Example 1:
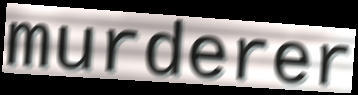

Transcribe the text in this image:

murderer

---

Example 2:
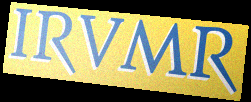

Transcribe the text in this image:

IRVMR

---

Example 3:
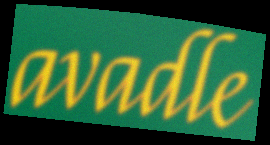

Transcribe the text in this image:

avadle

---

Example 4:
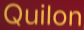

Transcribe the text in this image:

Quilon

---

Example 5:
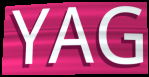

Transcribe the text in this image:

YAG